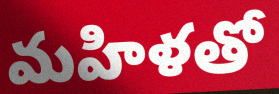
మహిళతో